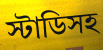
স্টাডিসহ